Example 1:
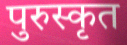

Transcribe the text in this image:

पुरुस्कृत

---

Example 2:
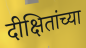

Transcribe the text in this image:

दीक्षितांच्या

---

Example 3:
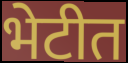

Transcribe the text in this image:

भेटीत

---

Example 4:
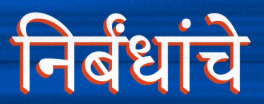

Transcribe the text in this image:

निर्बंधांचे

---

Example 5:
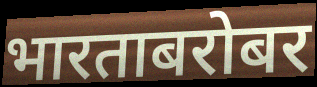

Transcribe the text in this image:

भारताबरोबर